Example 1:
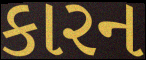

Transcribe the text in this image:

કારન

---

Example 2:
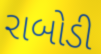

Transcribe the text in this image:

રાબોડી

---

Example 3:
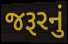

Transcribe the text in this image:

જરૂરનું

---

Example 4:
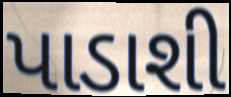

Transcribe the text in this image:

પાડાશી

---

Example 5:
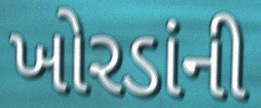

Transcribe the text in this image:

ખોરડાંની